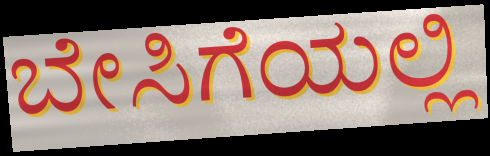
ಬೇಸಿಗೆಯಲ್ಲಿ